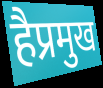
हैप्रमुख